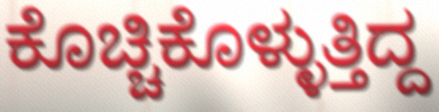
ಕೊಚ್ಚಿಕೊಳ್ಳುತ್ತಿದ್ದ